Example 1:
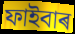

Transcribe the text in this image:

ফাইবাৰ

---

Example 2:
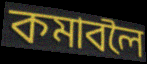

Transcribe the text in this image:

কমাবলৈ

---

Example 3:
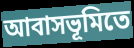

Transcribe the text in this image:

আবাসভূমিতে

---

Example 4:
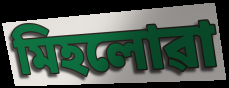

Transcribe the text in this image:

মিহলোৱা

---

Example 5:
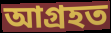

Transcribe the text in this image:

আগ্ৰহত